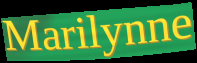
Marilynne